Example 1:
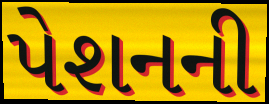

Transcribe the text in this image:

પેશનની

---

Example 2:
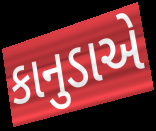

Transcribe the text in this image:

કાનુડાએ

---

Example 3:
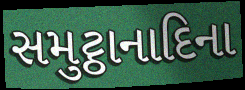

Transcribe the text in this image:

સમુટ્ઠાનાદિના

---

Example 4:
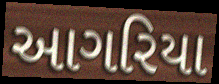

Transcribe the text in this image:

આગરિયા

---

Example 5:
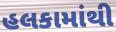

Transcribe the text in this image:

હલકામાંથી